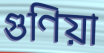
গুণিয়া